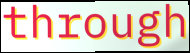
through